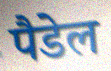
पैडेल